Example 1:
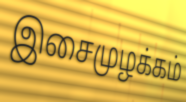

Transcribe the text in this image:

இசைமுழக்கம்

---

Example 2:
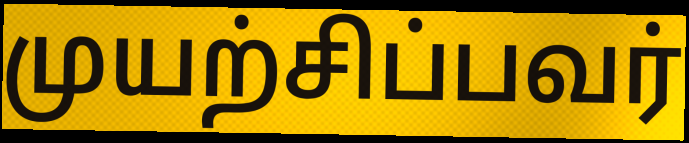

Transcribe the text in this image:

முயற்சிப்பவர்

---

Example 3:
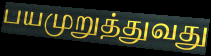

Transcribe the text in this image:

பயமுறுத்துவது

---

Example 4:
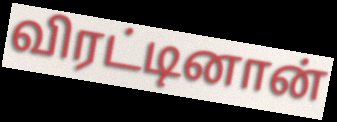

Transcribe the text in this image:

விரட்டினான்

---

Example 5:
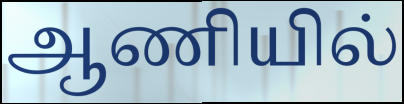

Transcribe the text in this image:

ஆணியில்